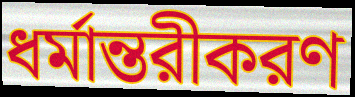
ধর্মান্তরীকরণ